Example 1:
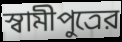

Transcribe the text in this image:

স্বামীপুত্রের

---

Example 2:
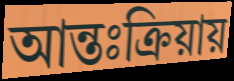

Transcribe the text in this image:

আন্তঃক্রিয়ায়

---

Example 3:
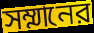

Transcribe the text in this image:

সম্মানের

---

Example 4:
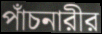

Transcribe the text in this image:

পাঁচনারীর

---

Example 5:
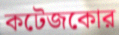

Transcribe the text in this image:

কটেজকোর